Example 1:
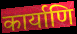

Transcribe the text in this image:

कार्याणि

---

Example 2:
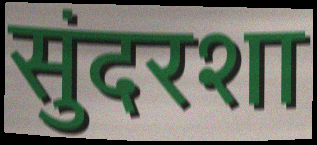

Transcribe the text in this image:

सुंदरशा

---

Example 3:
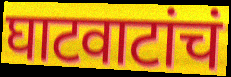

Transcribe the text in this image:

घाटवाटांचं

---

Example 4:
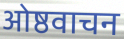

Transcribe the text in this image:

ओष्ठवाचन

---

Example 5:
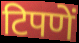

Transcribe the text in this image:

टिपणें